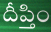
దీప్తిం